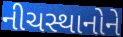
નીચસ્થાનોને